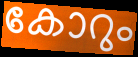
കോറും